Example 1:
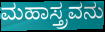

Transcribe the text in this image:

ಮಹಾಸ್ತ್ರವನು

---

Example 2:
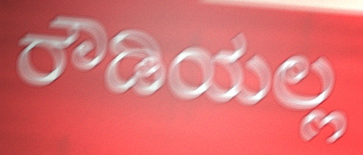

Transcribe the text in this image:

ರೌಡಿಯಲ್ಲ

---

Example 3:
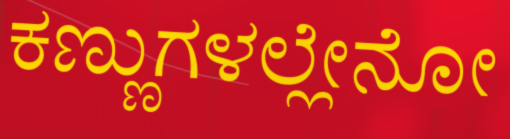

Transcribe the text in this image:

ಕಣ್ಣುಗಳಲ್ಲೇನೋ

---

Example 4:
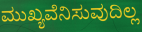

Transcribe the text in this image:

ಮುಖ್ಯವೆನಿಸುವುದಿಲ್ಲ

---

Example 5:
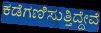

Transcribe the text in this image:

ಕಡೆಗಣಿಸುತ್ತಿದ್ದೇವೆ